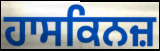
ਹਾਸਕਿਨਜ਼